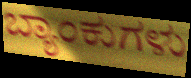
ಬ್ಯಾಂಕುಗಳು